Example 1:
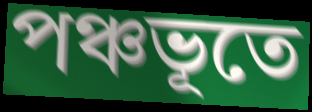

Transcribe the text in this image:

পঞ্চভূতে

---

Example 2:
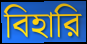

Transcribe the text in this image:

বিহারি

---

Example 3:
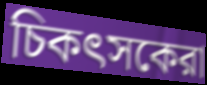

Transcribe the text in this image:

চিকৎসকেরা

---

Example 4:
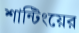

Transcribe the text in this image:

শান্টিংয়ের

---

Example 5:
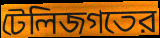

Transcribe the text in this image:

টেলিজগতের